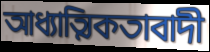
আধ্যাত্মিকতাবাদী